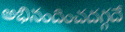
అభినందించదగ్గదే